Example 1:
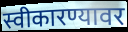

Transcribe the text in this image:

स्वीकारण्यावर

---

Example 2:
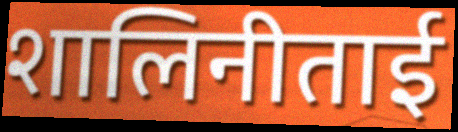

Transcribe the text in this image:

शालिनीताई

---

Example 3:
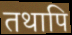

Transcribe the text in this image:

तथापि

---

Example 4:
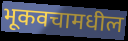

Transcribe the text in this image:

भूकवचामधील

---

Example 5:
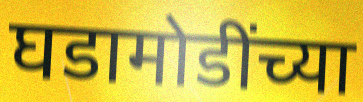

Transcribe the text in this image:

घडामोडींच्या